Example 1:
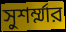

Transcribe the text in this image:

সুশর্ম্মার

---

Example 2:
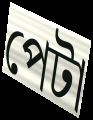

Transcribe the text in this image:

পেটা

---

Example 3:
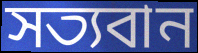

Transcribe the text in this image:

সত্যবান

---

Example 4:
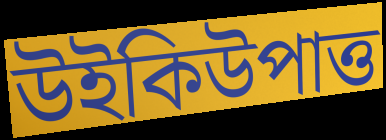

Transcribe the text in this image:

উইকিউপাত্ত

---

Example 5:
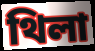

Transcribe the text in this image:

থিলা